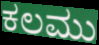
ಕಲಮು